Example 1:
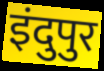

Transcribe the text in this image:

इंदुपुर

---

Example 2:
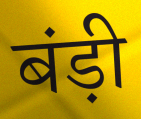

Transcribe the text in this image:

बंड़ी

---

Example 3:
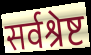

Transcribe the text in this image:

सर्वश्रेष्ट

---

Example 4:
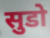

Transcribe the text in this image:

सुडो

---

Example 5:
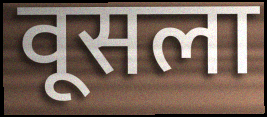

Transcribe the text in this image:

वूसला